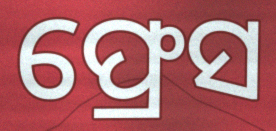
ଫ୍ରେସ